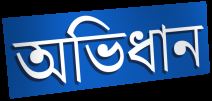
অভিধান